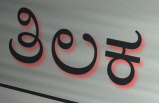
ತಿಲಕ